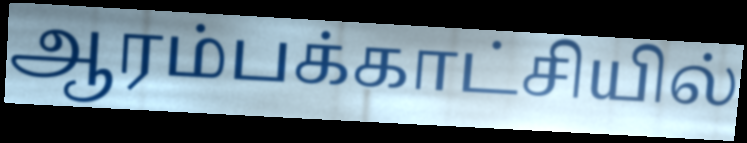
ஆரம்பக்காட்சியில்